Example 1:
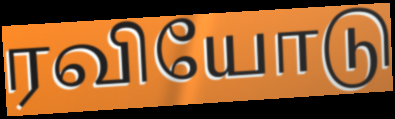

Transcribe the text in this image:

ரவியோடு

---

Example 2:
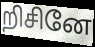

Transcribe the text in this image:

றிசினே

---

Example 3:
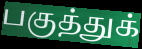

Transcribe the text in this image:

பகுத்துக்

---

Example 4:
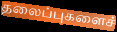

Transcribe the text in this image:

தலைப்புகளைச்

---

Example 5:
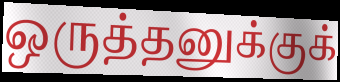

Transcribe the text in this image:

ஒருத்தனுக்குக்